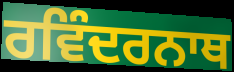
ਰਵਿੰਦਰਨਾਥ